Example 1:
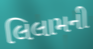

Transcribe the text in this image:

લિલામની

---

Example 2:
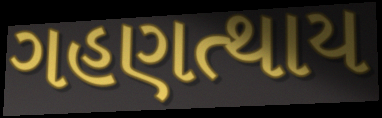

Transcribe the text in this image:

ગહણત્થાય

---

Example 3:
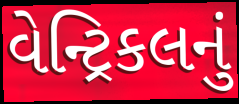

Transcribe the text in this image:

વેન્ટ્રિકલનું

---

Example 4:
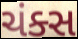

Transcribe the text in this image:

ચંક્સ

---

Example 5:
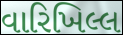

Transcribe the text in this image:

વારિખિલ્લ